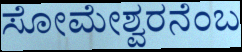
ಸೋಮೇಶ್ವರನೆಂಬ